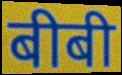
बीबी